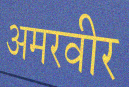
अमरवीर